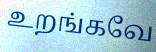
உறங்கவே